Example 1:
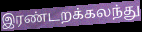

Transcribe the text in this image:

இரண்டறக்கலந்து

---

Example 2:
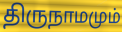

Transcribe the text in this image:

திருநாமமும்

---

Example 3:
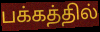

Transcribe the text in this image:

பக்கத்தில்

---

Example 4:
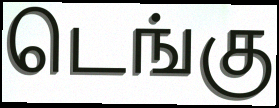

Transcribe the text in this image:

டெங்கு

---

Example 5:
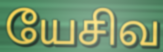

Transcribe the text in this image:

யேசிவ